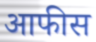
आफीस